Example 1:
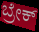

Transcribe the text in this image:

ಬ್ರೇಕ್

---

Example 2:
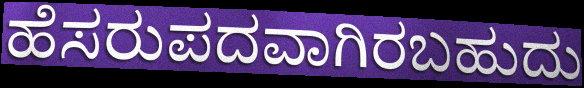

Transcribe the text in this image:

ಹೆಸರುಪದವಾಗಿರಬಹುದು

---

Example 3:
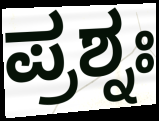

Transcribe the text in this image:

ಪ್ರಶ್ನಃ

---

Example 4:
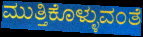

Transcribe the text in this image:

ಮುತ್ತಿಕೊಳ್ಳುವಂತೆ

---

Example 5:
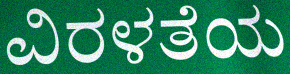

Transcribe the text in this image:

ವಿರಳತೆಯ